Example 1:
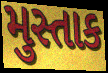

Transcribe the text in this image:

મુસ્તાક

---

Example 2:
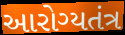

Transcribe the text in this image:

આરોગ્યતંત્ર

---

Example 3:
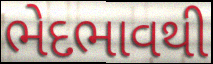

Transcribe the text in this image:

ભેદભાવથી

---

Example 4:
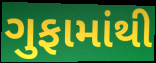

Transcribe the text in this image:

ગુફામાંથી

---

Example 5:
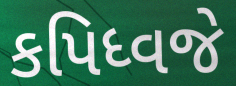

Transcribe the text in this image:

કપિધ્વજે